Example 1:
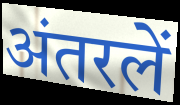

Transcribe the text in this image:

अंतरलें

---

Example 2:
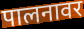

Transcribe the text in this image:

पालनावर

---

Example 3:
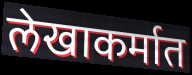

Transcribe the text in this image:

लेखाकर्मात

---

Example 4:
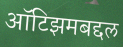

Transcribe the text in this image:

ऑटिझमबद्दल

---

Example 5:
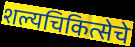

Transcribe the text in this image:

शल्यचिकित्सेचे